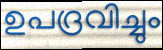
ഉപദ്രവിച്ചും